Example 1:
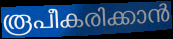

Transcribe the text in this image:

രൂപീകരിക്കാൻ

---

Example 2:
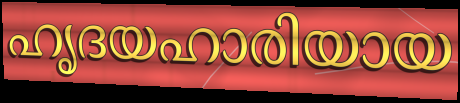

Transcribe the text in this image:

ഹൃദയഹാരിയായ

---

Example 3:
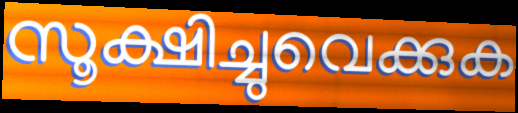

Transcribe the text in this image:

സൂക്ഷിച്ചുവെക്കുക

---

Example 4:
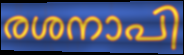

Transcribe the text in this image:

രശനാപി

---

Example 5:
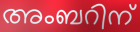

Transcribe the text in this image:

അംബറിന്